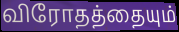
விரோதத்தையும்